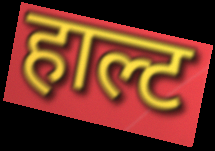
हाल्ट